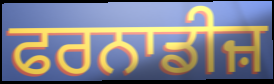
ਫਰਨਾਡੀਜ਼